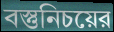
বস্তুনিচয়ের